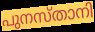
പുനസ്താനി